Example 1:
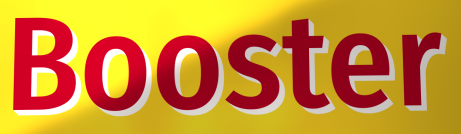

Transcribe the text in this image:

Booster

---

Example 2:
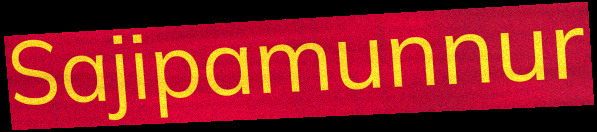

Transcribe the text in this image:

Sajipamunnur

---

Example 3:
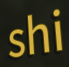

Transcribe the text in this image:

shi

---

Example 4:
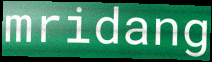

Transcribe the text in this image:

mridang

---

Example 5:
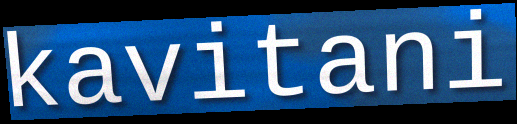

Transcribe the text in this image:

kavitani